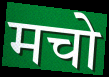
मचो